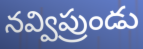
నవ్విప్రుండు